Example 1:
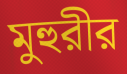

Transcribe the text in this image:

মুহুরীর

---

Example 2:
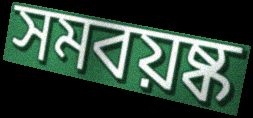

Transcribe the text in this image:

সমবয়ষ্ক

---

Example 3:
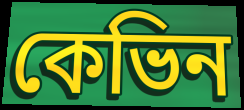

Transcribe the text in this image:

কেভিন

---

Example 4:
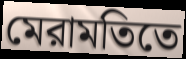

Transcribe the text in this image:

মেরামতিতে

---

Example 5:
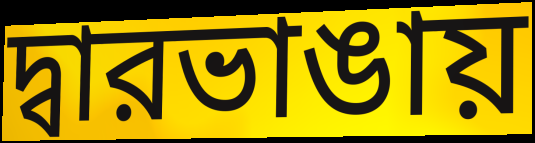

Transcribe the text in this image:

দ্বারভাঙায়